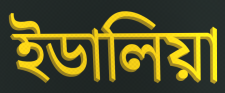
ইডালিয়া